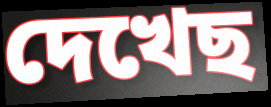
দেখেছ